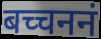
बच्चननं